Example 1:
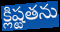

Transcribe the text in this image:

క్లిష్టతను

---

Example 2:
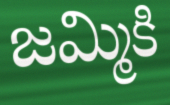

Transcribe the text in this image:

జమ్మికి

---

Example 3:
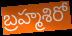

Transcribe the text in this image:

బ్రహ్మశిరో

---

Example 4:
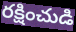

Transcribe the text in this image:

రక్షించుడి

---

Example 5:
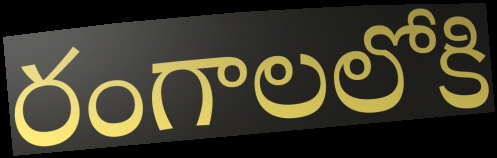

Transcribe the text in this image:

రంగాలలోకి